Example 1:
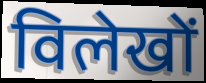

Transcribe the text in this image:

विलेखों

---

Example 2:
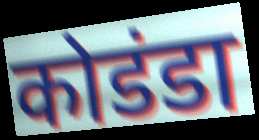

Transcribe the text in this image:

कोडंडा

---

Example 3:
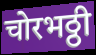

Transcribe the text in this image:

चोरभठ्ठी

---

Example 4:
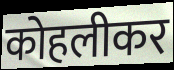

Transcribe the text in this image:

कोहलीकर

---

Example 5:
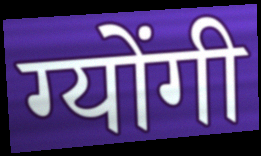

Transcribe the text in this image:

ग्योंगी